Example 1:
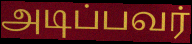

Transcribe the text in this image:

அடிப்பவர்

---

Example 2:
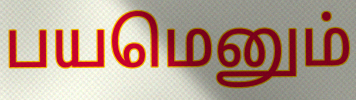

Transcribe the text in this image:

பயமெனும்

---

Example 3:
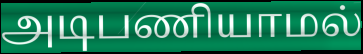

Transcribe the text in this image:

அடிபணியாமல்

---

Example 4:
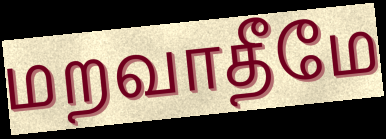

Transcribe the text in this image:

மறவாதீமே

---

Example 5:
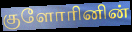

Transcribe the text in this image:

குளோரினின்